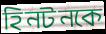
হিনটনকে